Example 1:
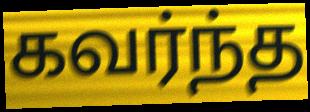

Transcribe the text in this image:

கவர்ந்த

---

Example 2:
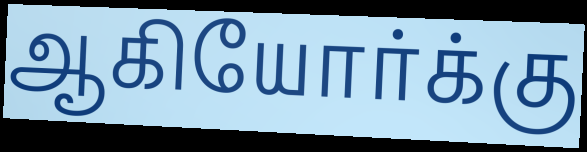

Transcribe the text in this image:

ஆகியோர்க்கு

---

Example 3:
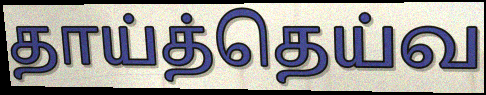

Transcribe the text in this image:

தாய்த்தெய்வ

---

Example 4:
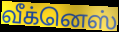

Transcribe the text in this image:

வீக்னெஸ்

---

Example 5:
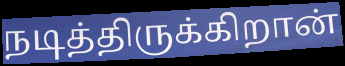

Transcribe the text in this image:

நடித்திருக்கிறான்